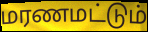
மரணமட்டும்